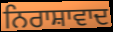
ਨਿਰਾਸ਼ਾਵਾਦ